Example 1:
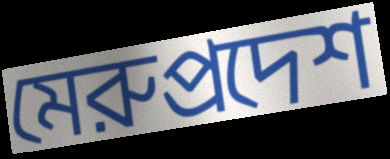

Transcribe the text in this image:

মেরুপ্রদেশ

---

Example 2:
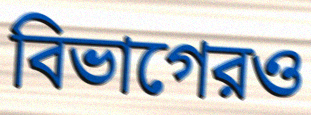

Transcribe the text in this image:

বিভাগেরও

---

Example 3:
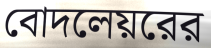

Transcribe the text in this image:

বোদলেয়রের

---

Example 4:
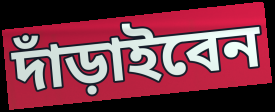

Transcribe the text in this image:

দাঁড়াইবেন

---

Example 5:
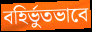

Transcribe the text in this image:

বহির্ভুতভাবে